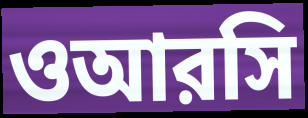
ওআরসি